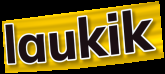
laukik